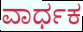
ವಾರ್ಧಕ